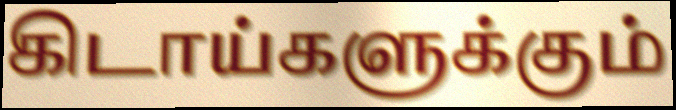
கிடாய்களுக்கும்